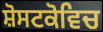
ਸ਼ੋਸਟਕੋਵਿਚ